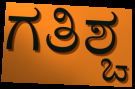
ಗತಿಶ್ಚ